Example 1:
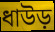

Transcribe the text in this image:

ধাউড়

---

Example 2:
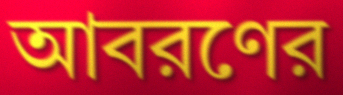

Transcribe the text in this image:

আবরণের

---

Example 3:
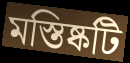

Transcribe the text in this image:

মস্তিষ্কটি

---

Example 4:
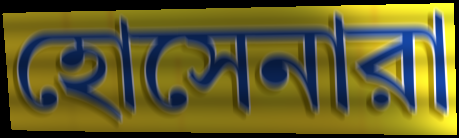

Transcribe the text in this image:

হোসেনারা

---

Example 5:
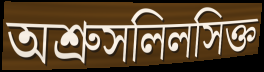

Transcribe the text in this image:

অশ্রুসলিলসিক্ত